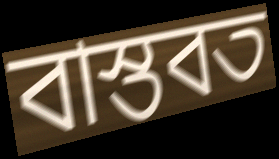
বাস্তবত